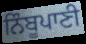
ਨਿੰਬੂਪਾਣੀ